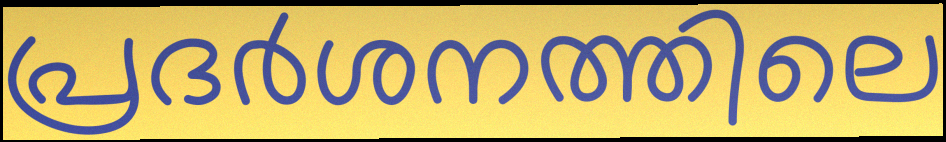
പ്രദർശനത്തിലെ